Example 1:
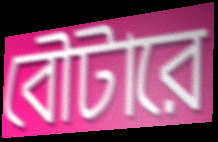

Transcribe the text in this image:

বৌটারে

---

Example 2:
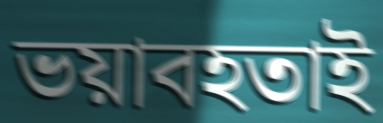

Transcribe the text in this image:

ভয়াবহতাই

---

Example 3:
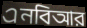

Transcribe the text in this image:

এনবিআর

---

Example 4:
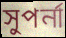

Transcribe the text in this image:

সুপর্না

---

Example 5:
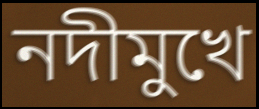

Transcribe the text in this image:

নদীমুখে